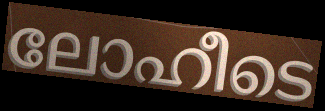
ലോഹീടെ